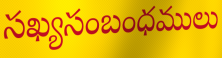
సఖ్యసంబంధములు